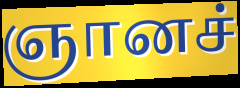
ஞானச்